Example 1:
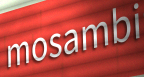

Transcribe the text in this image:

mosambi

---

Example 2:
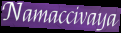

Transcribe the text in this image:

Namaccivaya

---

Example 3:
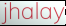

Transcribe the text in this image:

jhalay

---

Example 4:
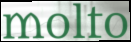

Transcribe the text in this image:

molto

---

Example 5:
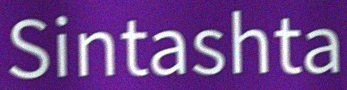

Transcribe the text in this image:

Sintashta